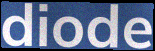
diode